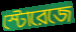
স্টোরেজে